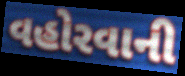
વહોરવાની